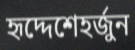
হৃদ্দেশেহর্জুন